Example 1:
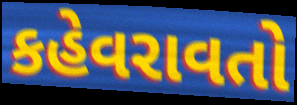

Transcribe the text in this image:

કહેવરાવતો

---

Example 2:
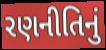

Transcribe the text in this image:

રણનીતિનું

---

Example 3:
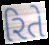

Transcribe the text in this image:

રિતે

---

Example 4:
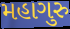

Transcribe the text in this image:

મહાગુરુ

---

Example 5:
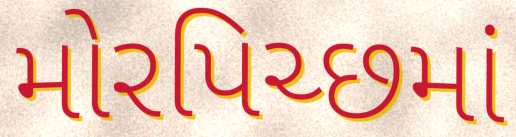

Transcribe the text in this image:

મોરપિચ્છમાં